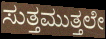
ಸುತ್ತಮುತ್ತಲೇ